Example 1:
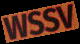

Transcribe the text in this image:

WSSV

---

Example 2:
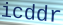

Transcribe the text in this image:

icddr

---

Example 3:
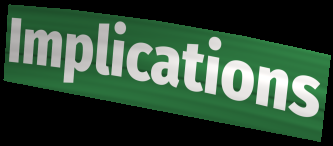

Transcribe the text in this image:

Implications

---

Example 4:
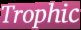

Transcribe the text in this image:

Trophic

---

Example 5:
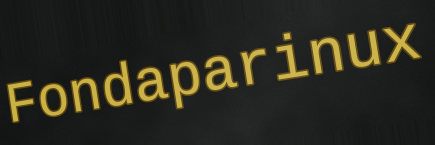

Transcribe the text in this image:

Fondaparinux